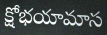
క్షోభయామాస